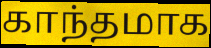
காந்தமாக